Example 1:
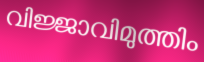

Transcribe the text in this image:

വിജ്ജാവിമുത്തിം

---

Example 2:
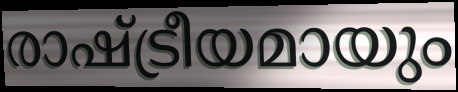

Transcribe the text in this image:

രാഷ്ട്രീയമായും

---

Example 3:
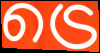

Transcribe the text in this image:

ട്രെ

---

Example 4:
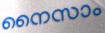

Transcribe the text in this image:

നൈസാം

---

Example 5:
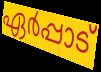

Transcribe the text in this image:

ഏർപ്പാട്